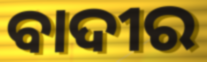
ବାଦୀର